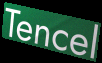
Tencel